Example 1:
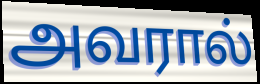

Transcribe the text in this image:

அவரால்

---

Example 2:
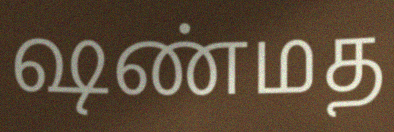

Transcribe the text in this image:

ஷண்மத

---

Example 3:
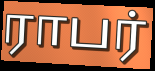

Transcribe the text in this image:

ராபர்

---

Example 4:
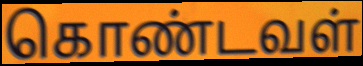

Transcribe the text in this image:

கொண்டவள்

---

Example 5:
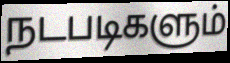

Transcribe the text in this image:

நடபடிகளும்